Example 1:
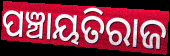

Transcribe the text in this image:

ପଞ୍ଚାୟତିରାଜ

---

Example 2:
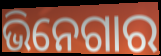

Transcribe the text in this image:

ଭିନେଗାର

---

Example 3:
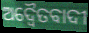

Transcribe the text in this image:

ଅଦ୍ୱୈତବାଦୀ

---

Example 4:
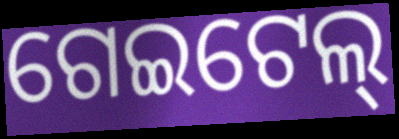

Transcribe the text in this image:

ଗେଇଟେଲ୍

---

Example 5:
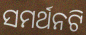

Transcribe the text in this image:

ସମର୍ଥନଟି